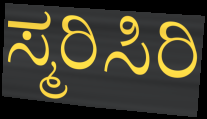
ಸ್ಮರಿಸಿರಿ